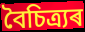
বৈচিত্ৰ্যৰ